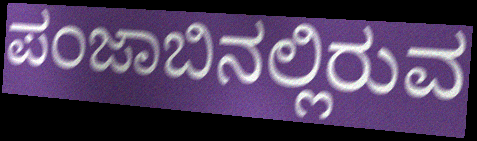
ಪಂಜಾಬಿನಲ್ಲಿರುವ